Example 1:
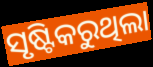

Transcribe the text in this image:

ସୃଷ୍ଟିକରୁଥିଲା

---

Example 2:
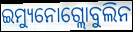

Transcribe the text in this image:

ଇମ୍ୟୁନୋଗ୍ଲୋବୁଲିନ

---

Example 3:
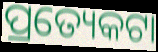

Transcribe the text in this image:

ପ୍ରତ୍ୟେକଟା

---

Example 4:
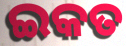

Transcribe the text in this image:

ଇକତ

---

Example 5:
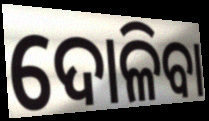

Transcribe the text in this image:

ଦୋଳିବା